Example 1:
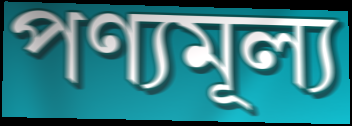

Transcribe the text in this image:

পণ্যমূল্য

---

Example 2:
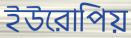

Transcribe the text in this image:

ইউরোপিয়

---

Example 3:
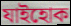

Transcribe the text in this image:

যাইহোক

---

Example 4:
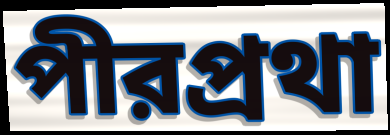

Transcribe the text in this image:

পীরপ্রথা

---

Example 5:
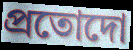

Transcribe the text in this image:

প্রতোদো